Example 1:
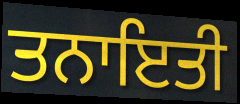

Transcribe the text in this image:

ਤਨਾਇਤੀ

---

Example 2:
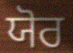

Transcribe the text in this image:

ਯੋਰ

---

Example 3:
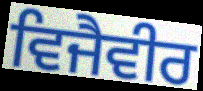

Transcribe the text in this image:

ਵਿਜੈਵੀਰ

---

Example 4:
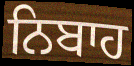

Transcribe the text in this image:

ਨਿਬਾਹ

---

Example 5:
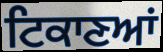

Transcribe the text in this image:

ਟਿਕਾਣਆਂ